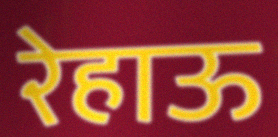
रेहाऊ